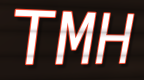
TMH